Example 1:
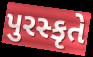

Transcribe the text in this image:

પુરસ્કૃતે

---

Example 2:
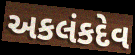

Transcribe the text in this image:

અકલંકદેવ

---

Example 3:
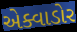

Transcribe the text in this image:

એક્વાડોર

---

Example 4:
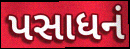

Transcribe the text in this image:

પસાધનં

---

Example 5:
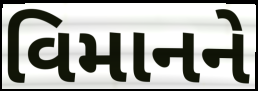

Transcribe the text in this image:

વિમાનને